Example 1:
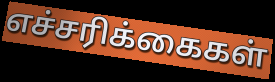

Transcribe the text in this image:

எச்சரிக்கைகள்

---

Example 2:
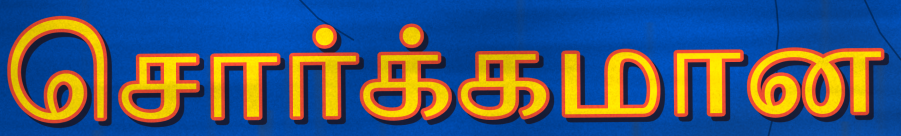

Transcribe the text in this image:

சொர்க்கமான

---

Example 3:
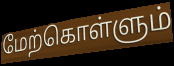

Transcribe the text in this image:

மேற்கொள்ளும்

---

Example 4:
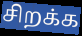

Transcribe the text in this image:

சிறக்க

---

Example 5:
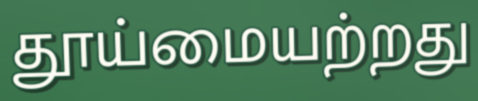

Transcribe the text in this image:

தூய்மையற்றது